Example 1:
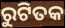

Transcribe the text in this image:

ରୁଟିତକ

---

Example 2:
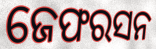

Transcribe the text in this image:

ଜେଫରସନ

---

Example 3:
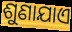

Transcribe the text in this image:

ଶୁଣାଯାଏ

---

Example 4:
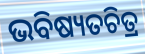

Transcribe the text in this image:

ଭବିଷ୍ୟତଚିତ୍ର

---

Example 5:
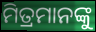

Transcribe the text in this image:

ମିତ୍ରମାନଙ୍କୁ